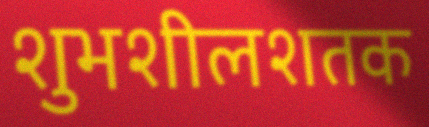
शुभशीलशतक